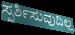
ಸ್ಪರ್ಶಿಸುವುದಿಲ್ಲ